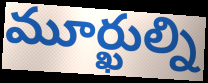
మూర్ఖుల్ని